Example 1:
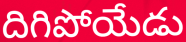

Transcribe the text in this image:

దిగిపోయేడు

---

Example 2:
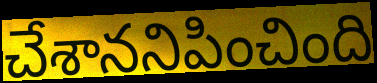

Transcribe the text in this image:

చేశాననిపించింది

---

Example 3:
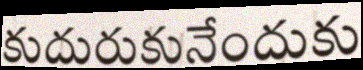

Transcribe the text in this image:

కుదురుకునేందుకు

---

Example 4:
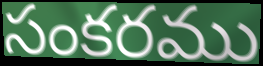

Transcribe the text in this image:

సంకరము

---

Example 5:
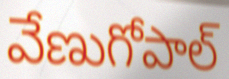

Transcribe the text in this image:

వేణుగోపాల్